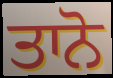
ਤਾਨੋ